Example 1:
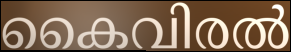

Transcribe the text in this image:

കൈവിരൽ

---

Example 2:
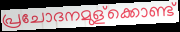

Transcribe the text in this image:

പ്രചോദനമുള്ക്കൊണ്ട്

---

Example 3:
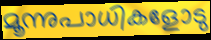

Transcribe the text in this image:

മൂന്നുപാധികളോടു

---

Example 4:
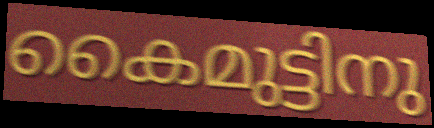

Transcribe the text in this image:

കൈമുട്ടിനു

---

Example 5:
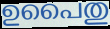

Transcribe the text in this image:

ഉപൈതു